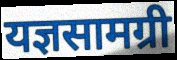
यज्ञसामग्री